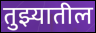
तुझ्यातील